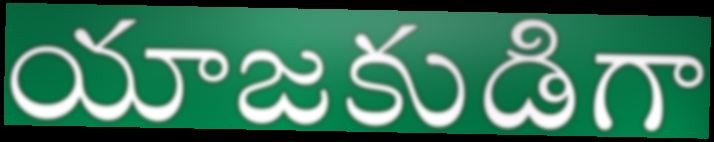
యాజకుడిగా